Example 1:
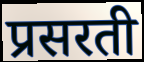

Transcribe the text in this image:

प्रसरती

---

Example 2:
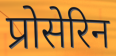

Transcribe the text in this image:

प्रोसेरिन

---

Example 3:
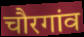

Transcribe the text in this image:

चौरगांव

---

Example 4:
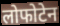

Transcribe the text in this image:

लोफोटेन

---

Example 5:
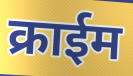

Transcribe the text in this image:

क्राईम